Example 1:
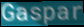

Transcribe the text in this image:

Gaspar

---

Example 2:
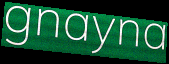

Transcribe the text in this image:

gnayna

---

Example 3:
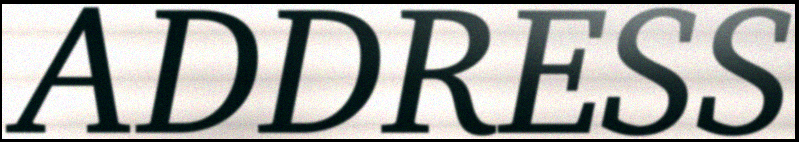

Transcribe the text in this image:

ADDRESS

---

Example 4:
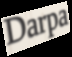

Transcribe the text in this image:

Darpa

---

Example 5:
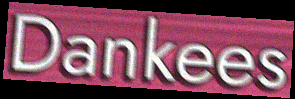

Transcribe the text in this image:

Dankees